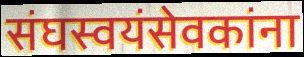
संघस्वयंसेवकांना